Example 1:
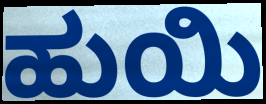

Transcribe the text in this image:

ಹುಯಿ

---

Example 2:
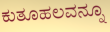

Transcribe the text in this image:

ಕುತೂಹಲವನ್ನೂ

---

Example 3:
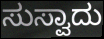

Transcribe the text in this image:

ಸುಸ್ವಾದು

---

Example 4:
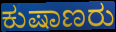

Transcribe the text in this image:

ಕುಷಾಣರು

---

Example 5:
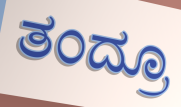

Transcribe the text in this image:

ತಂದ್ರೂ